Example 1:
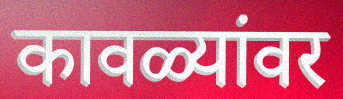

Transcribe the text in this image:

कावळ्यांवर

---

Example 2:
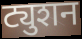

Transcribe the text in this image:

ट्युशन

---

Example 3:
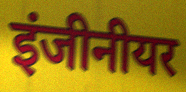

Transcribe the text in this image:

इंजीनीयर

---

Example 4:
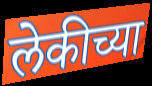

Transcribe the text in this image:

लेकीच्या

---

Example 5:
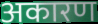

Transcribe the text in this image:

अकारण